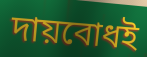
দায়বোধই